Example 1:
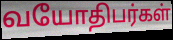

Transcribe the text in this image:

வயோதிபர்கள்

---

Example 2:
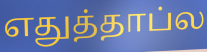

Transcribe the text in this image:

எதுத்தாப்ல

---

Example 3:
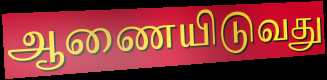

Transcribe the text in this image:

ஆணையிடுவது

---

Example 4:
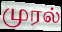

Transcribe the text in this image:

முரல்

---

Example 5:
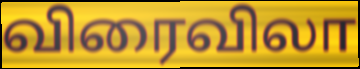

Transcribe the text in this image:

விரைவிலா